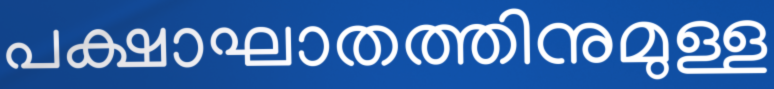
പക്ഷാഘാതത്തിനുമുള്ള